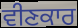
ਵੀਣਕਾਰ